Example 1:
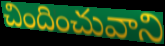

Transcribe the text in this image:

చిందించువాని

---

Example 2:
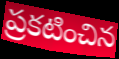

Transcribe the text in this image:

ప్రకటించిన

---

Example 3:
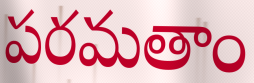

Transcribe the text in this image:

పరమతాం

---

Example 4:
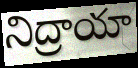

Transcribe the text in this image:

నిద్రాయా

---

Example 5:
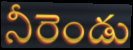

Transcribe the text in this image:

నీరెండు